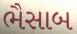
ભૈસાબ